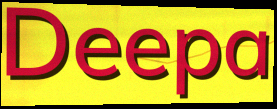
Deepa